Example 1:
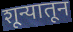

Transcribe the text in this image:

शून्यातून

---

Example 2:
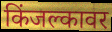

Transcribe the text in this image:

किंजल्कावर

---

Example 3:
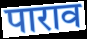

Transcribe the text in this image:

पाराव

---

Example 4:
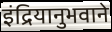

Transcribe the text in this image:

इंद्रियानुभवाने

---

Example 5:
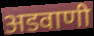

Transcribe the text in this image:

अडवाणी